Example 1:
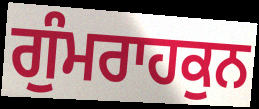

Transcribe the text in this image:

ਗੁੰਮਰਾਹਕੁਨ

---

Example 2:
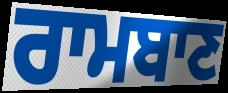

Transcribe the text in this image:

ਰਾਮਬਾਣ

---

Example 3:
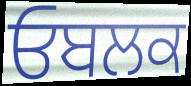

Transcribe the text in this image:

ਓਬਲਕ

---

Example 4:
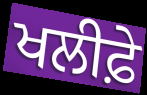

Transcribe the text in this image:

ਖਲੀਫ਼ੇ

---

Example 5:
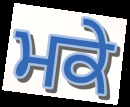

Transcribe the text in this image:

ਮਕੇ